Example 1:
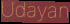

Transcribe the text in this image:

Udayan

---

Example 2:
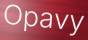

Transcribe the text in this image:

Opavy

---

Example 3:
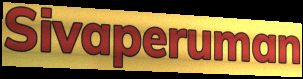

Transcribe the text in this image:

Sivaperuman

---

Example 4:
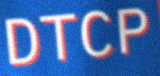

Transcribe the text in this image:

DTCP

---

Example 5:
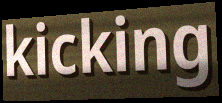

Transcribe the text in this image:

kicking